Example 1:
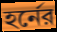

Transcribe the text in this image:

হর্নের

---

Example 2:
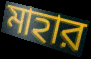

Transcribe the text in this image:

মাহার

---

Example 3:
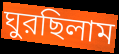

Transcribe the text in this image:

ঘুরছিলাম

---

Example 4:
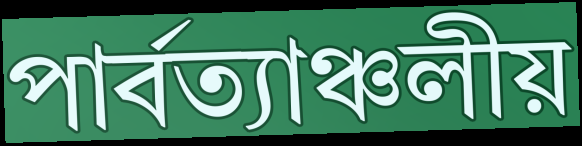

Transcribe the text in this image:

পার্বত্যাঞ্চলীয়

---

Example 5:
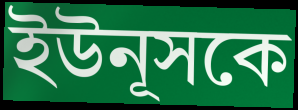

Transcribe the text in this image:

ইউনূসকে